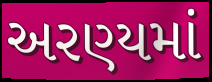
અરણ્યમાં